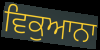
ਵਿਕੁਆਨਾ